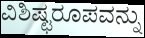
ವಿಶಿಷ್ಟರೂಪವನ್ನು